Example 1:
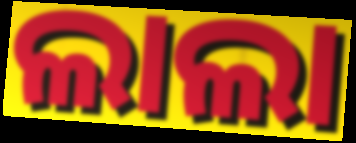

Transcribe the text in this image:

ଲାଲା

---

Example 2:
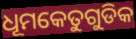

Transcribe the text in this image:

ଧୂମକେତୁଗୁଡିକ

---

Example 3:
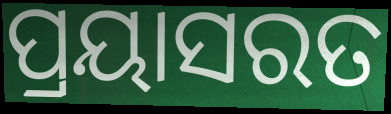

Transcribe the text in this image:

ପ୍ରୟାସରତ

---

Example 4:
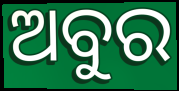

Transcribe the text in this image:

ଅବୁର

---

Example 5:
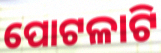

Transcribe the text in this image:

ପୋଟଳାଟି